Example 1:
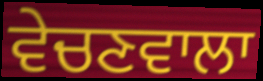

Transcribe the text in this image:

ਵੇਚਣਵਾਲਾ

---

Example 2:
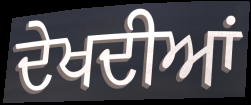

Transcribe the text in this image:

ਦੇਖਦੀਆਂ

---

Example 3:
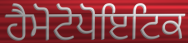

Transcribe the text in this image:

ਹੈਮੋਟੋਪੋਇਟਿਕ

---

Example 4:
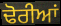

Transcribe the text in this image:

ਢੋਰੀਆਂ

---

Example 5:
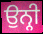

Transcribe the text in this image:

ਉਨ੍ਨੀ